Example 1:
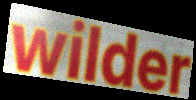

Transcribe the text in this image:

wilder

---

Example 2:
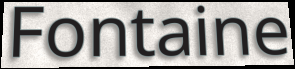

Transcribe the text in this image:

Fontaine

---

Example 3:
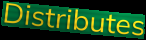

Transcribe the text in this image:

Distributes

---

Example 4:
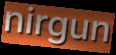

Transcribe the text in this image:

nirgun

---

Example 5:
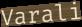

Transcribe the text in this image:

Varali